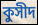
কুসীদ